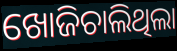
ଖୋଜିଚାଲିଥିଲା